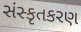
સંસ્કૃતકરણ